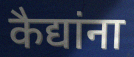
कैद्यांना